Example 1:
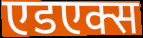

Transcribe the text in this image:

एडएक्स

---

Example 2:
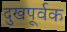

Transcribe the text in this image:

दुखपूर्वक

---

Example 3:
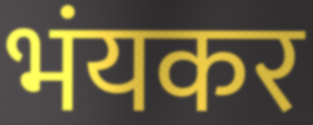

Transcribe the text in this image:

भंयकर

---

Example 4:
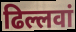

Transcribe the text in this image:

ढिल्लवां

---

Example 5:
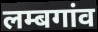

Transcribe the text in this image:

लम्बगांव